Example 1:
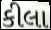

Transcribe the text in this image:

કીલા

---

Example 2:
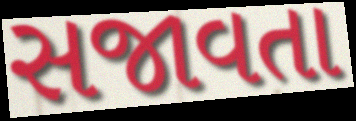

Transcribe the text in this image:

સજાવતા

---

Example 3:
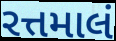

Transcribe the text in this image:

રત્તમાલં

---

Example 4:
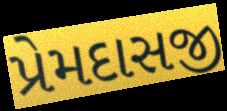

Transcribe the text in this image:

પ્રેમદાસજી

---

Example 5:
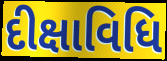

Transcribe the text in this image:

દીક્ષાવિધિ